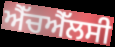
ਐੱਚਐੱਲਸੀ